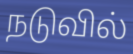
நடுவில்